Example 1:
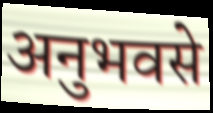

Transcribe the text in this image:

अनुभवसे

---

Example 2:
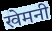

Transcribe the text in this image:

खेमनी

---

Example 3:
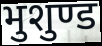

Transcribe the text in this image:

भुशुण्ड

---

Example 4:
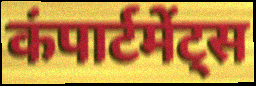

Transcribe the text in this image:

कंपार्टमेंट्स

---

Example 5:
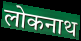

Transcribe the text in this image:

लोकनाथ